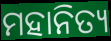
ମହାନିତ୍ୟ